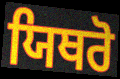
ਯਿਥਰੋ